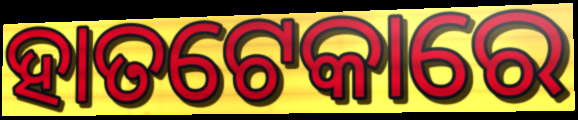
ହାତଟେକାରେ